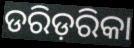
ଡରିଡ଼ରିକା